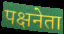
पक्षनेता